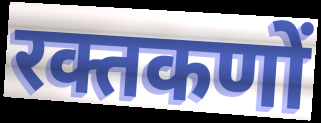
रक्तकणों